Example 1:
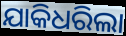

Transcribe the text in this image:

ଯାକିଧରିଲା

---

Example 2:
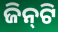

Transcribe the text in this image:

ଜିନ୍‌ଟି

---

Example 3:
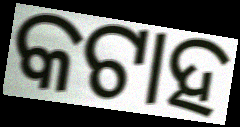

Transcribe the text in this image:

କଟାହ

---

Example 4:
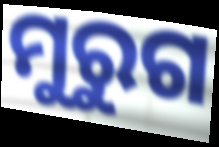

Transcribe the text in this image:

ମୁରୁଗ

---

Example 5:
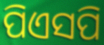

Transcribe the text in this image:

ପିଏସପି